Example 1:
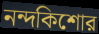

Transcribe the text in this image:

নন্দকিশোর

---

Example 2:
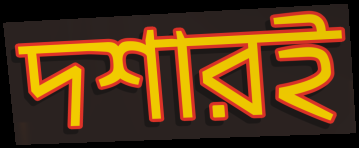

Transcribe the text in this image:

দশারই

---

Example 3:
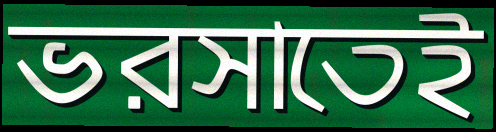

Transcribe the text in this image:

ভরসাতেই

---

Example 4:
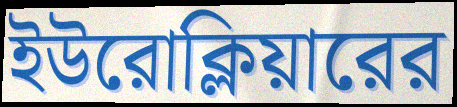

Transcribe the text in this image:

ইউরোক্লিয়ারের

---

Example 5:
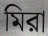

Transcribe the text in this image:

মিরা